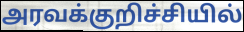
அரவக்குறிச்சியில்